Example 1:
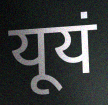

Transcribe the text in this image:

यूयं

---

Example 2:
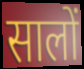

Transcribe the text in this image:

सालों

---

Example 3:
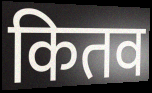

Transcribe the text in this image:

कितव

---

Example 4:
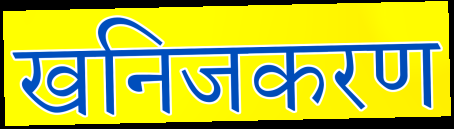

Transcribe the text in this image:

खनिजकरण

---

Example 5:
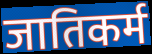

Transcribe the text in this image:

जातिकर्म